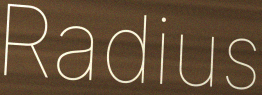
Radius